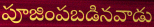
పూజింపబడినవాడు